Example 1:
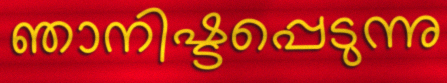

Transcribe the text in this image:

ഞാനിഷ്ടപ്പെടുന്നു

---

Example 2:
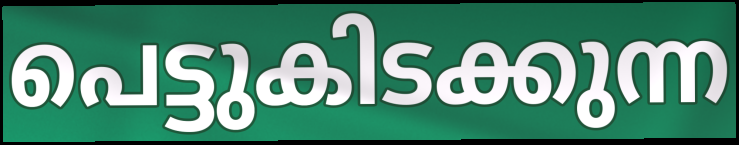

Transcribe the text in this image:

പെട്ടുകിടക്കുന്ന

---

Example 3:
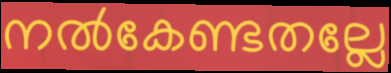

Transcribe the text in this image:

നൽകേണ്ടതല്ലേ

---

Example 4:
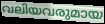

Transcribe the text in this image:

വലിയവരുമായ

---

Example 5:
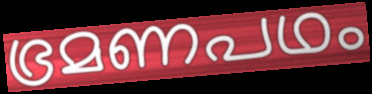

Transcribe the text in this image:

ഭ്രമണപഥം